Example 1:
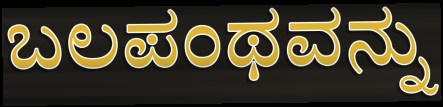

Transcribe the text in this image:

ಬಲಪಂಥವನ್ನು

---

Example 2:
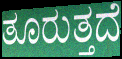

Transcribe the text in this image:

ತೂರುತ್ತದೆ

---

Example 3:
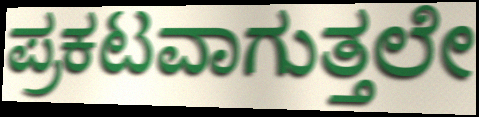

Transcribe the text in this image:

ಪ್ರಕಟವಾಗುತ್ತಲೇ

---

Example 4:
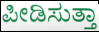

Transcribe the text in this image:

ಪೀಡಿಸುತ್ತಾ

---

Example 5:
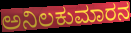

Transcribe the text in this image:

ಅನಿಲಕುಮಾರನ